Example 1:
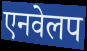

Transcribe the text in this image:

एनवेलप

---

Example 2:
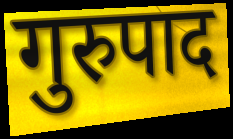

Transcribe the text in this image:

गुरुपाद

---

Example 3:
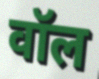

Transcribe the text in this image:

वॉल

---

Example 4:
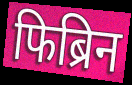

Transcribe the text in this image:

फिब्रिन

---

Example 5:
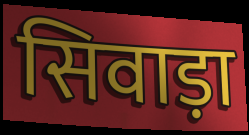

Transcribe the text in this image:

सिवाड़ा